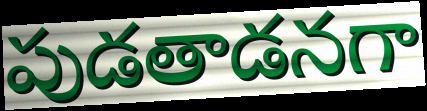
పుడతాడనగా